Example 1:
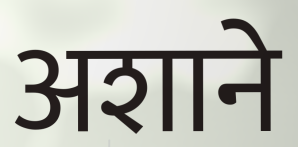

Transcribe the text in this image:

अशाने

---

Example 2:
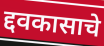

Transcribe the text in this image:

द्दवकासाचे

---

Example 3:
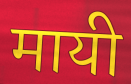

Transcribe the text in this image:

मायी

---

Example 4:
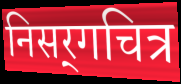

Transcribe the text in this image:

निसर्गचित्र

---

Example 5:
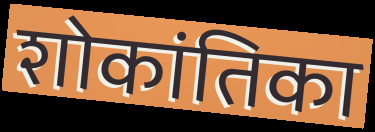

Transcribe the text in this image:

शोकांतिका